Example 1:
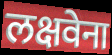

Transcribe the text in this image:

लक्षवेना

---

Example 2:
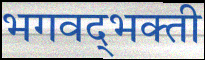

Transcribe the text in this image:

भगवद्‌भक्ती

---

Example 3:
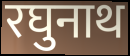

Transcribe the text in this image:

रघुनाथ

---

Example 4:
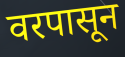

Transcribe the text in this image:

वरपासून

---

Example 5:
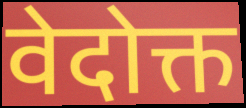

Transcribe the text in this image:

वेदोक्त